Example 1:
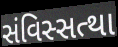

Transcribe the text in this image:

સંવિસ્સત્થા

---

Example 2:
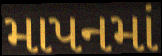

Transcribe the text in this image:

માપનમાં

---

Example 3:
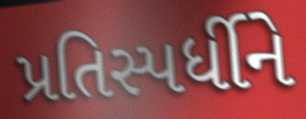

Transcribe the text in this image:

પ્રતિસ્પર્ધીને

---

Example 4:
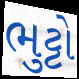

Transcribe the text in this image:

ભુટ્ટો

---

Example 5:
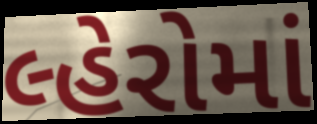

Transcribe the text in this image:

લ્હેરોમાં